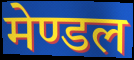
मेण्डल